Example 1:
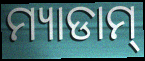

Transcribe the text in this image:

ମ୍ଯାଡାମ୍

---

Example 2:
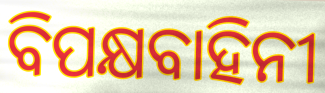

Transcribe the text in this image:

ବିପକ୍ଷବାହିନୀ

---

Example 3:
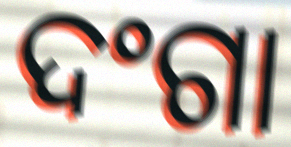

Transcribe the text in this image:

ଦଂଗା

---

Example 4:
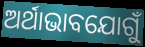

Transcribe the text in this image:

ଅର୍ଥାଭାବଯୋଗୁଁ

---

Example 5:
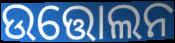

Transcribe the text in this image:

ଉତ୍ତୋଲନ